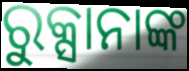
ରୁକ୍ସାନାଙ୍କ